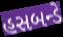
હસબન્ડે